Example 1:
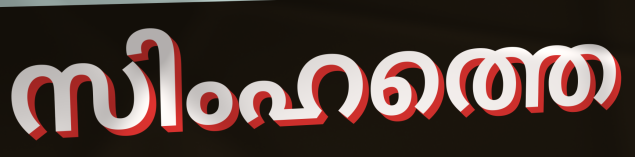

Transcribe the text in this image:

സിംഹത്തെ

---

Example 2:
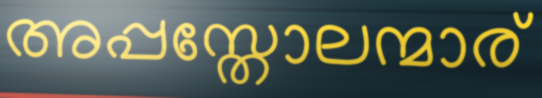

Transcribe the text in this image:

അപ്പസ്തോലന്മാര്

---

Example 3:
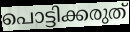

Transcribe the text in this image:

പൊട്ടിക്കരുത്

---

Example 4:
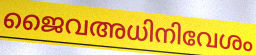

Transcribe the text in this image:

ജൈവഅധിനിവേശം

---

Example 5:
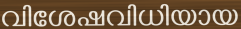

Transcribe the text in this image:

വിശേഷവിധിയായ